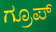
ಗ್ರೂಪ್